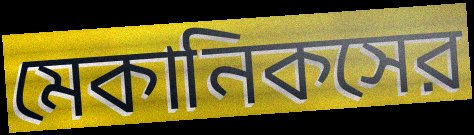
মেকানিকসের